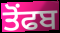
ਤੋਂਫਬ